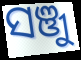
ସଞ୍ଜୁ